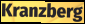
Kranzberg